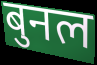
बुनल